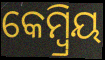
କେମ୍ବ୍ରିୟ